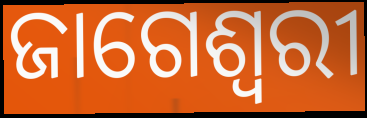
ଜାଗେଶ୍ୱରୀ